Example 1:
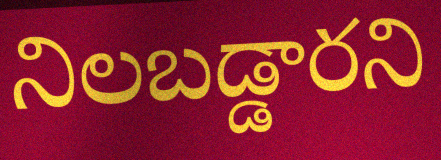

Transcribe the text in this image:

నిలబడ్డారని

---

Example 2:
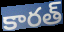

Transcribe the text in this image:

కారత్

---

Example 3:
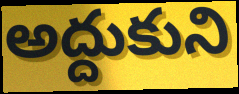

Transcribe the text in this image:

అద్దుకుని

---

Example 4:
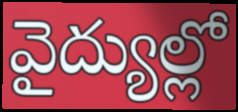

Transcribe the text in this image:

వైద్యుల్లో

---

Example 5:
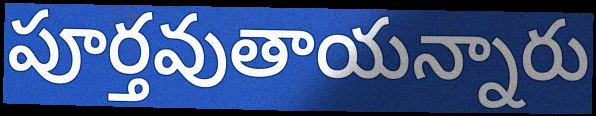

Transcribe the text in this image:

పూర్తవుతాయన్నారు